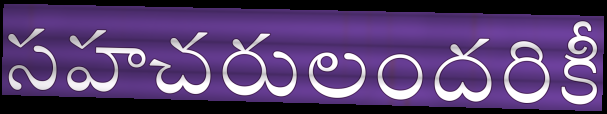
సహచరులందరికీ